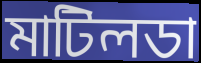
মাটিলডা